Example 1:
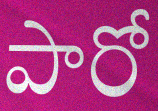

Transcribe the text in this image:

పారో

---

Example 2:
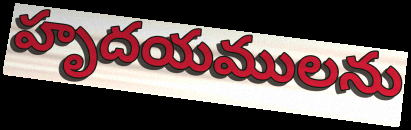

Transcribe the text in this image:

హృదయములను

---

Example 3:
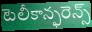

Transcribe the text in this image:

టెలీకాన్ఫరెన్స్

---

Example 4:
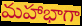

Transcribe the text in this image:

మహాభాగా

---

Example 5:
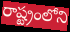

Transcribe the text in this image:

రాష్ట్రంలోని